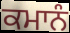
ਕਮਾਨੰ